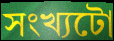
সংখ্যটো